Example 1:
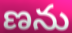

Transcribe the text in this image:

ణను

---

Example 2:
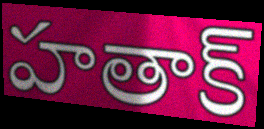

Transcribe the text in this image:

హతాక్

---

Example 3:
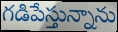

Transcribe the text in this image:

గడిపేస్తున్నాను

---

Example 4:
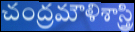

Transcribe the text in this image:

చంద్రమౌళిశాస్త్రి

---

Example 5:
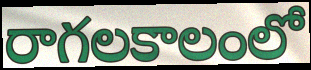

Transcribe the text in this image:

రాగలకాలంలో